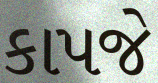
કાપજે